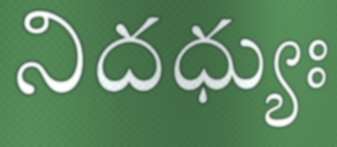
నిదధ్యుః